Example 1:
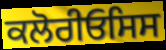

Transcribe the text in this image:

ਕਲੋਰੀਓਸਿਸ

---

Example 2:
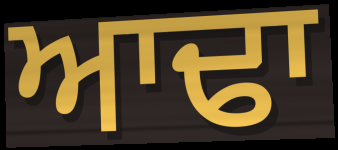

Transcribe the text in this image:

ਆਢਾ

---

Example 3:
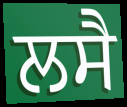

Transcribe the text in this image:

ਲਸੈ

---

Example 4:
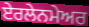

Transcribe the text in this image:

ਏਰਲੇਨਮੇਅਰ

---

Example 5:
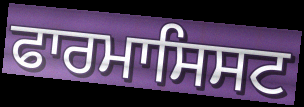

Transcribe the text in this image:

ਫਾਰਮਾਸਿਸਟ